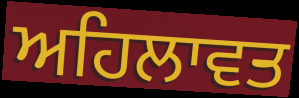
ਅਹਿਲਾਵਤ